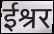
ईश्रर